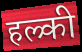
हल्की